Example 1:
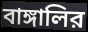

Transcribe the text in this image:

বাঙ্গালির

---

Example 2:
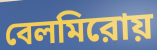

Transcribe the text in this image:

বেলমিরোয়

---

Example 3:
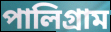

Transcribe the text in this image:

পালিগ্রাম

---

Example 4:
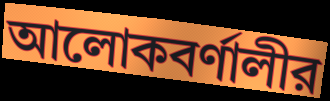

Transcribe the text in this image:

আলোকবর্ণালীর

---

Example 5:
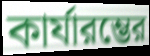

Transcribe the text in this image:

কার্যারম্ভের